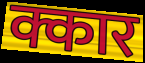
क्कार